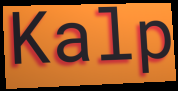
Kalp